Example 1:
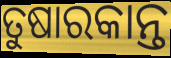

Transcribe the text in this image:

ତୁଷାରକାନ୍ତ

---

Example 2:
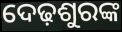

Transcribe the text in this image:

ଦେଢ଼ଶୁରଙ୍କ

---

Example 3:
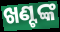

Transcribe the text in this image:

ଖଣ୍ଟଙ୍କ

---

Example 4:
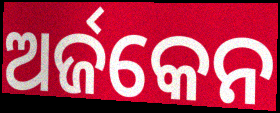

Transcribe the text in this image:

ଅର୍ଜକେନ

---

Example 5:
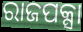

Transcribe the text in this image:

ରାଜପକ୍ସା